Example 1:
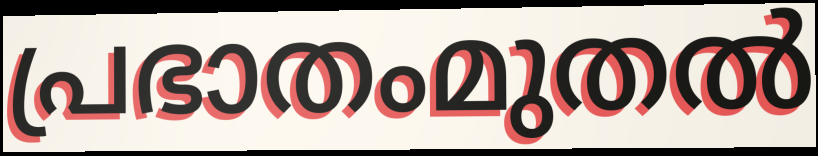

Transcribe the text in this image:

പ്രഭാതംമുതൽ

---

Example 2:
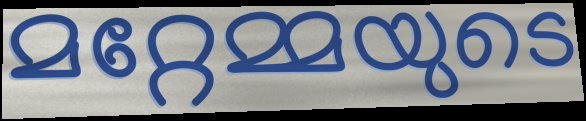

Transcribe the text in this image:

മറ്റേമ്മയുടെ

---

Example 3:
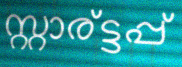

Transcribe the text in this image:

സ്റ്റാര്ട്ടപ്പ്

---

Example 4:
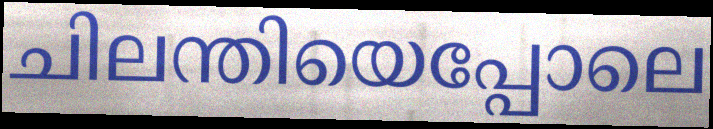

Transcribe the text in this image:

ചിലന്തിയെപ്പോലെ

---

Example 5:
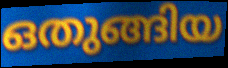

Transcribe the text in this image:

ഒതുങ്ങിയ